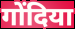
गोंदिया